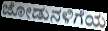
ಜೋಡುನಳಿಗೆಯ